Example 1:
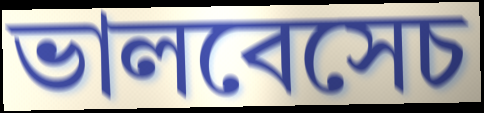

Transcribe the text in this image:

ভালবেসেচ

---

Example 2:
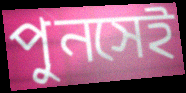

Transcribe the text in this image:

পুনসেই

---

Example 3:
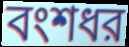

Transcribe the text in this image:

বংশধর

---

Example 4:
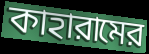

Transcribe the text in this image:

কাহারামের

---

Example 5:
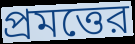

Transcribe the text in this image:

প্রমত্তের